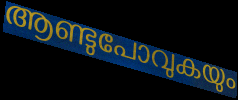
ആണ്ടുപോവുകയും